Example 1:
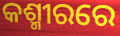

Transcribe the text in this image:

କଶ୍ମୀରରେ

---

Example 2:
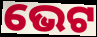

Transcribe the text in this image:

ଭେଟ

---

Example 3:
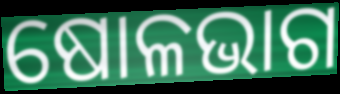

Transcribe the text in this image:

ଷୋଳଭାଗ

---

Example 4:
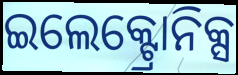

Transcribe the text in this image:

ଇଲେକ୍ଟ୍ରୋନିକ୍ସ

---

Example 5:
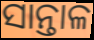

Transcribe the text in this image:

ସାନ୍ତାଳ